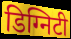
डिग्निटी